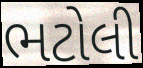
ભટોલી